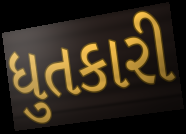
ધુતકારી